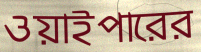
ওয়াইপারের